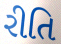
રીતિ